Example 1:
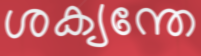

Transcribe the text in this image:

ശക്യന്തേ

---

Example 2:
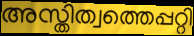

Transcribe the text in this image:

അസ്തിത്വത്തെപ്പറ്റി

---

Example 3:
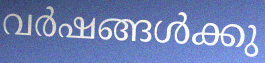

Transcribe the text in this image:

വർഷങ്ങൾക്കു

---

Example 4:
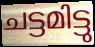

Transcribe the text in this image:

ചട്ടമിട്ടു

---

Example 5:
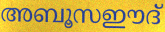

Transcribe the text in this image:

അബൂസഈദ്